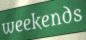
weekends